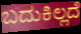
ಬದುಕಿಲ್ಲದೆ